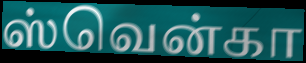
ஸ்வென்கா